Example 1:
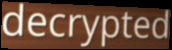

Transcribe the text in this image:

decrypted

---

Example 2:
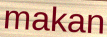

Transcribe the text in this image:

makan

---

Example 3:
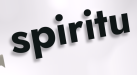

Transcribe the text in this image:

spiritu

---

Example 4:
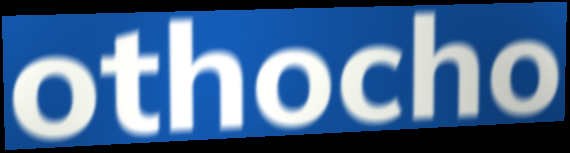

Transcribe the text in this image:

othocho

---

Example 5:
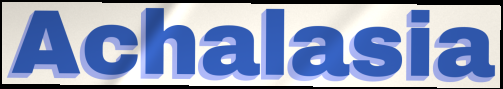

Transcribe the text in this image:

Achalasia